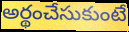
అర్థంచేసుకుంటే